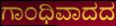
ಗಾಂಧಿವಾದದ